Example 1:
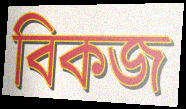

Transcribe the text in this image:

বিকজ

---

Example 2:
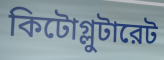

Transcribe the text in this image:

কিটোগ্লুটারেট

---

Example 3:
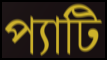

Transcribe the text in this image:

প্যাটি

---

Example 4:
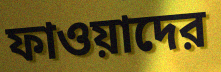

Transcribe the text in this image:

ফাওয়াদের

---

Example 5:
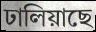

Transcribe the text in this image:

ঢালিয়াছে